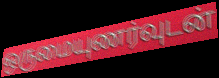
ஒருமையுணர்வுடன்